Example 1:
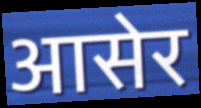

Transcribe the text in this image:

आसेर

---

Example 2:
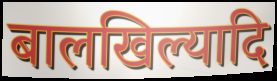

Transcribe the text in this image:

बालखिल्यादि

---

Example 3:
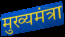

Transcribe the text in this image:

मुख्यमंत्रा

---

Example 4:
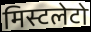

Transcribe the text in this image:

मिस्टलेटो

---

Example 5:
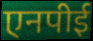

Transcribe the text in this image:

एनपीई